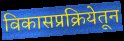
विकासप्रक्रियेतून